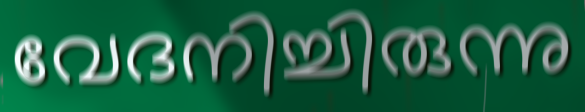
വേദനിച്ചിരുന്നു